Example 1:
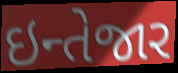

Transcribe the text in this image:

ઇન્તેજાર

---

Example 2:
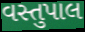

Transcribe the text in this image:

વસ્તુપાલ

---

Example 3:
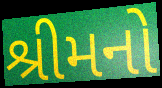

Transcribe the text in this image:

શ્રીમનો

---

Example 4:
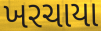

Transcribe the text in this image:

ખરચાયા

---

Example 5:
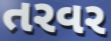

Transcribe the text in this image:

તરવર